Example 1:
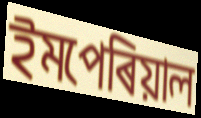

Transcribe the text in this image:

ইমপেৰিয়াল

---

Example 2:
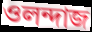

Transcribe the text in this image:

ওলন্দাজ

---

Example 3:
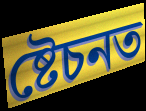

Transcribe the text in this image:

ষ্টেচনত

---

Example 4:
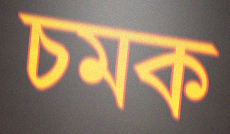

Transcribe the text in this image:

চমক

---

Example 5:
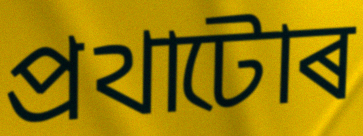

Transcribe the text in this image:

প্ৰথাটোৰ